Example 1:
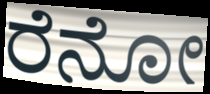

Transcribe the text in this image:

ರೆನೋ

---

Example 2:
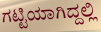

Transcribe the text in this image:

ಗಟ್ಟಿಯಾಗಿದ್ದಲ್ಲಿ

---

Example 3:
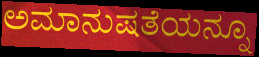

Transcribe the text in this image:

ಅಮಾನುಷತೆಯನ್ನೂ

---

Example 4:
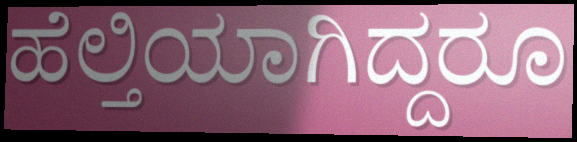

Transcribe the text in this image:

ಹೆಲ್ತಿಯಾಗಿದ್ದರೂ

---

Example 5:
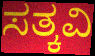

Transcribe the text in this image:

ಸತ್ಕವಿ